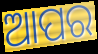
ଆପର